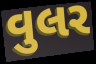
વુલર